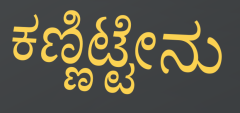
ಕಣ್ಣಿಟ್ಟೇನು